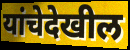
यांचेदेखील